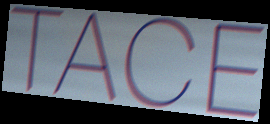
TACE